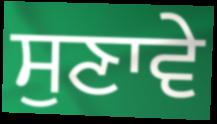
ਸੁਣਾਵੇ